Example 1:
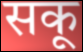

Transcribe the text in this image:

सकू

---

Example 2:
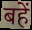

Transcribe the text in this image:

बहें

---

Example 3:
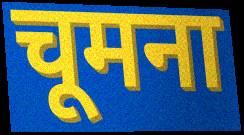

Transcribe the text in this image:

चूमना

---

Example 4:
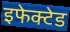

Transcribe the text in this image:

इफेक्टेड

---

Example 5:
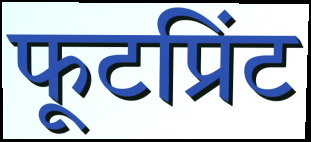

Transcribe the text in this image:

फूटप्रिंट